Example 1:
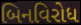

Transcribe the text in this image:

બિનવિરોધ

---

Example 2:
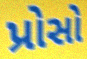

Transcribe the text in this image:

પ્રોસો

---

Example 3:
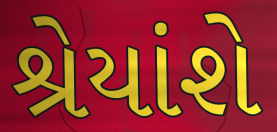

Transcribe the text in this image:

શ્રેયાંશે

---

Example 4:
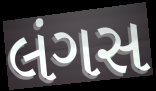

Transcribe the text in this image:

લંગસ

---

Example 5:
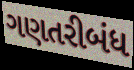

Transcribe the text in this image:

ગણતરીબંધ